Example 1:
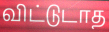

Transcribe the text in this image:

விட்டுடாத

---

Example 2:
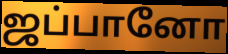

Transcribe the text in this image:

ஜப்பானோ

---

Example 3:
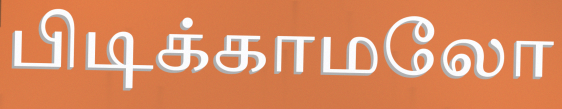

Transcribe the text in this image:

பிடிக்காமலோ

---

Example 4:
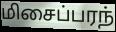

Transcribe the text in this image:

மிசைப்பரந்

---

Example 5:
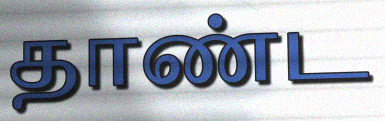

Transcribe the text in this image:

தாண்ட